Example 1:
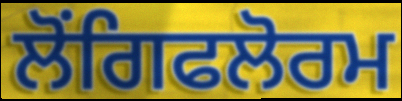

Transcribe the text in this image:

ਲੋਂਗਿਫਲੋਰਮ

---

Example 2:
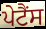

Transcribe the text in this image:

ਪੇਟੈਂਸ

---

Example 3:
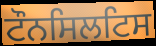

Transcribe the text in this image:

ਟੌਨਸਿਲਟਿਸ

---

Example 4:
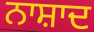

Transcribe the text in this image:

ਨਾਸ਼ਾਦ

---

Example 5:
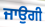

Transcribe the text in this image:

ਜਾਉਗੀ